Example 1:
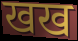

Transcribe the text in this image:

खख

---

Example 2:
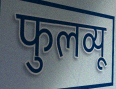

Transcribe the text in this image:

फुलव्यू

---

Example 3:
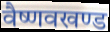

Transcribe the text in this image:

वैष्णवखण्ड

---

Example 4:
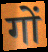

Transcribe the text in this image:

गों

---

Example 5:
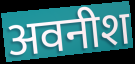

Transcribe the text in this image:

अवनीश